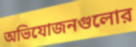
অভিযোজনগুলোর